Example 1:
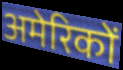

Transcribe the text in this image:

अमेरिकों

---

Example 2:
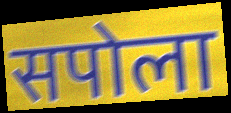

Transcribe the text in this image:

सपोला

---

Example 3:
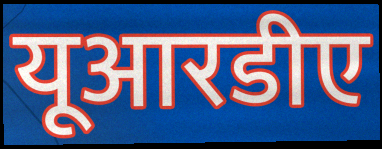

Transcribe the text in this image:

यूआरडीए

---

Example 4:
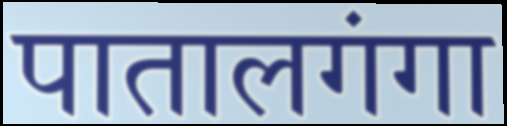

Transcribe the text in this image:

पातालगंगा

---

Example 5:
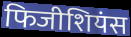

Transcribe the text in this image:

फिजीशियंस